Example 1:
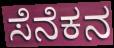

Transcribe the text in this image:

ಸೆನೆಕನ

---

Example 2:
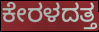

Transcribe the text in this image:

ಕೇರಳದತ್ತ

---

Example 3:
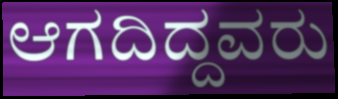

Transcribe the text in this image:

ಆಗದಿದ್ದವರು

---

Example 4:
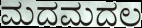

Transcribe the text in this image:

ಮದಮದಲ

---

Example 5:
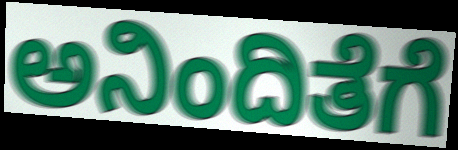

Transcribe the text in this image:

ಅನಿಂದಿತೆಗೆ